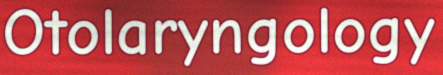
Otolaryngology